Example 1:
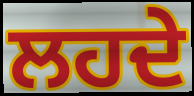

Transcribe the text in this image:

ਲਹਦੇ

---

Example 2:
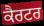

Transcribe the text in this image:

ਕੈਰਟਰ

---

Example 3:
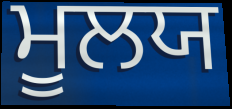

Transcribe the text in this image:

ਮੂਲਯ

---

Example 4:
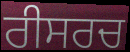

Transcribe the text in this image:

ਰੀਸਰਚ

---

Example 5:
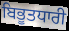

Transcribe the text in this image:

ਬਿਭੂਤਧਾਰੀ